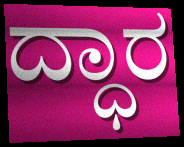
ದ್ಧಾರ